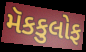
મૅકકુલોફ